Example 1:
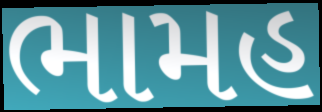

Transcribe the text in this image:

ભામહ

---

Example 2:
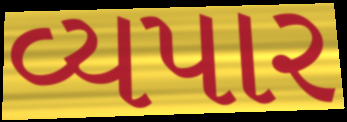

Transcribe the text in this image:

વ્યપાર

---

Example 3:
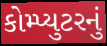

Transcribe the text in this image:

કોમ્પ્યુટરનું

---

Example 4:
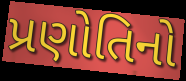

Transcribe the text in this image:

પ્રણોતિનો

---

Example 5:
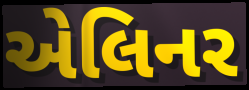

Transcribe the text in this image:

એલિનર